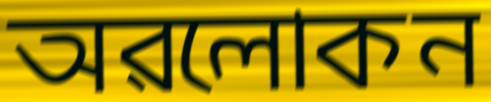
অৱলোকন